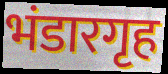
भंडारगृह